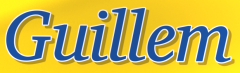
Guillem